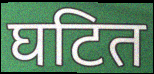
घटित